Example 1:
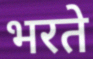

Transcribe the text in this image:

भरते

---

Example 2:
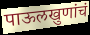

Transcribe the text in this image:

पाऊलखुणांचं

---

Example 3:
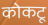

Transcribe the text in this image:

कोकटू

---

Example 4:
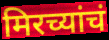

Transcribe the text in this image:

मिरच्यांचं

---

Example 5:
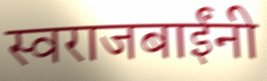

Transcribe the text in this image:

स्वराजबाईंनी